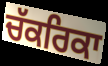
ਚੱਕਰਿਕਾ